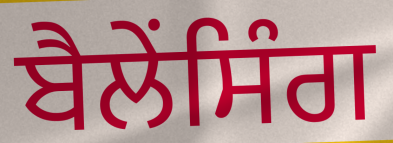
ਬੈਲੇਂਸਿੰਗ